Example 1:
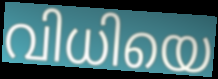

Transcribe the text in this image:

വിധിയെ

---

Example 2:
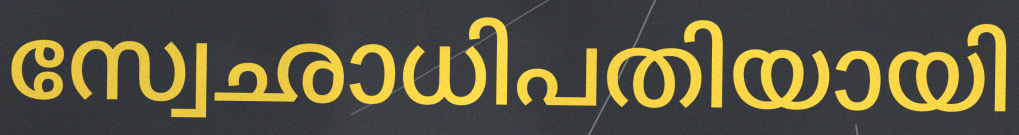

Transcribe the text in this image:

സ്വേഛാധിപതിയായി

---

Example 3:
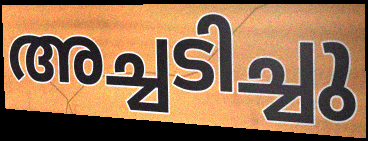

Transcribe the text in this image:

അച്ചടിച്ചു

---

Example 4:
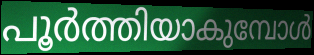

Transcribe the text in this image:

പൂർത്തിയാകുമ്പോൾ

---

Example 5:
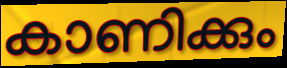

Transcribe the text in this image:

കാണിക്കും